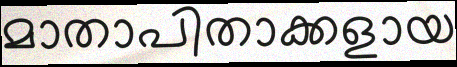
മാതാപിതാക്കളായ